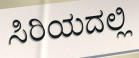
ಸಿರಿಯದಲ್ಲಿ